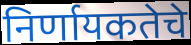
निर्णायकतेचे